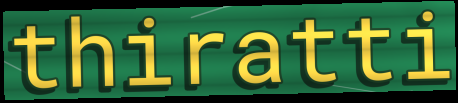
thiratti